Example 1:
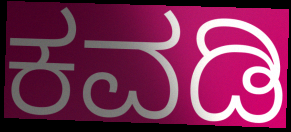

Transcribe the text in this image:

ಕವಡಿ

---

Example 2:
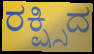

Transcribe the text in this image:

ರಕ್ಷ್ಸಿದ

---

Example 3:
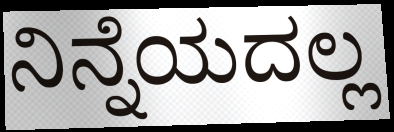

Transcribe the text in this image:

ನಿನ್ನೆಯದಲ್ಲ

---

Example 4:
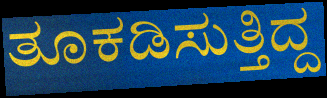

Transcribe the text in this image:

ತೂಕಡಿಸುತ್ತಿದ್ದ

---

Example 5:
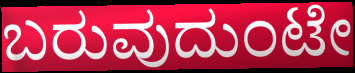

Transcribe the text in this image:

ಬರುವುದುಂಟೇ